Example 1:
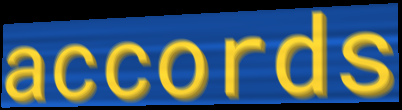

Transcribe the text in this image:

accords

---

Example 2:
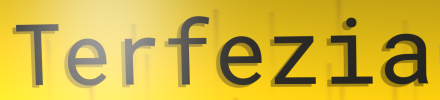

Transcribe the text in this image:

Terfezia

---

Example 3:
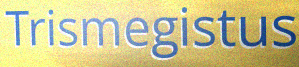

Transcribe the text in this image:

Trismegistus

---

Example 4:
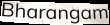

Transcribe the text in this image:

Bharangam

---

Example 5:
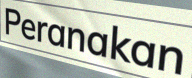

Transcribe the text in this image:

Peranakan